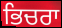
ਭਿਚਰਾ